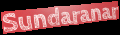
Sundaranar